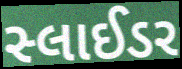
સ્લાઈડર